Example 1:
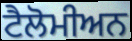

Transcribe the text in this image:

ਟੈਲੋਮੀਅਨ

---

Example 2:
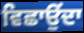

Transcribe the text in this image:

ਵਿਛਾਉਂਦਾ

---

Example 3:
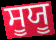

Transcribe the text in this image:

ਸੂਯੂ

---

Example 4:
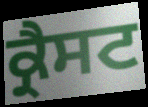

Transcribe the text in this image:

ਕ੍ਰੈਸਟ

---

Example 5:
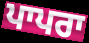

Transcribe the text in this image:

ਪਾਪਰਾ